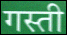
गस्ती